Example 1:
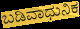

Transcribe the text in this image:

ಬಡಿವಾಧುನಿಕ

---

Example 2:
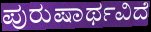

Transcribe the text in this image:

ಪುರುಷಾರ್ಥವಿದೆ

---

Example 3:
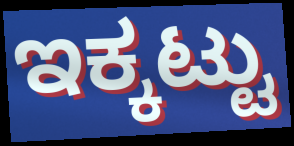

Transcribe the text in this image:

ಇಕ್ಕಟ್ಟು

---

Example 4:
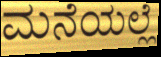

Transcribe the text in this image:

ಮನೆಯಲ್ಲೆ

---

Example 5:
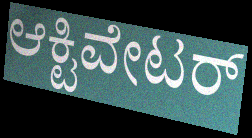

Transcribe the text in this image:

ಆಕ್ಟಿವೇಟರ್